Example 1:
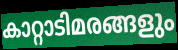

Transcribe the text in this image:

കാറ്റാടിമരങ്ങളും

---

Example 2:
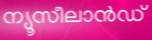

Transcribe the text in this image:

ന്യൂസീലാൻഡ്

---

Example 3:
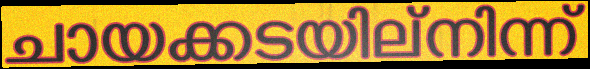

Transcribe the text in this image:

ചായക്കടയില്നിന്ന്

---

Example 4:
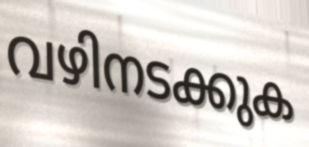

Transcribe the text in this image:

വഴിനടക്കുക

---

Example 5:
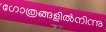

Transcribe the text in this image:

ഗോത്രങ്ങളിൽനിന്നു